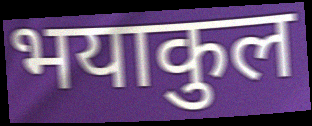
भयाकुल